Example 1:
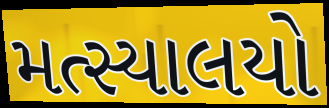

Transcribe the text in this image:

મત્સ્યાલયો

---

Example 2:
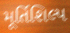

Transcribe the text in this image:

મૂર્તિશિલ્પ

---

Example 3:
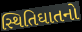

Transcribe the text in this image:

સ્થિતિઘાતનો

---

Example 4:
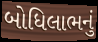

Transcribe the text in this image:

બોધિલાભનું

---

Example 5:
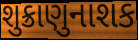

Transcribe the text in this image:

શુક્રાણુનાશક